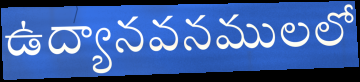
ఉద్యానవనములలో